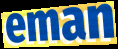
eman